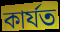
কাৰ্যত